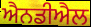
ਐਨਡੀਐਲ